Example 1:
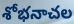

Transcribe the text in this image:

శోభనాచల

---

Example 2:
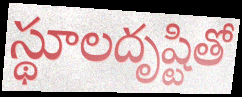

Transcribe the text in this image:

స్థూలదృష్టితో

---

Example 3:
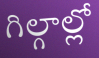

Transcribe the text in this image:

గిల్గాల్లో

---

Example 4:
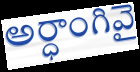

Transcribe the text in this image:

అర్ధాంగివై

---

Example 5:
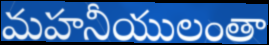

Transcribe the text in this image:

మహనీయులంతా